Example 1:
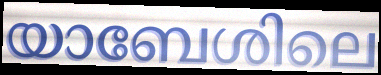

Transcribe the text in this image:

യാബേശിലെ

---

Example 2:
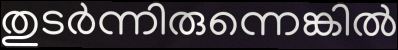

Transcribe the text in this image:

തുടർന്നിരുന്നെങ്കിൽ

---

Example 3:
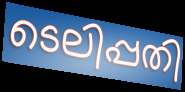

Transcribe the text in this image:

ടെലിപ്പതി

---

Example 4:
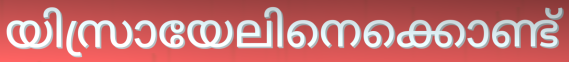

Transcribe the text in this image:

യിസ്രായേലിനെക്കൊണ്ട്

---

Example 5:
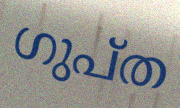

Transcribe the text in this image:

ഗുപ്ത